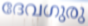
ദേവഗുരു